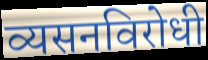
व्यसनविरोधी